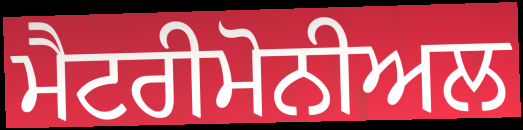
ਮੈਟਰੀਮੋਨੀਅਲ